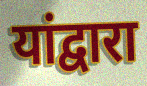
यांद्वारा